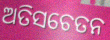
ଅତିସଚେତନ